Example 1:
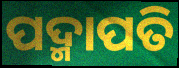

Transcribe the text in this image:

ପଦ୍ମାପତି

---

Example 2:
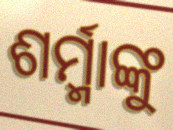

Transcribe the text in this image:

ଶର୍ମ୍ମାଙ୍କୁ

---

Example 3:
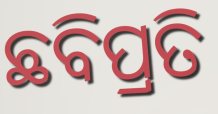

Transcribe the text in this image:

ଛବିପ୍ରତି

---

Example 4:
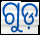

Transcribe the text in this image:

ଗୁଡ଼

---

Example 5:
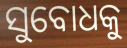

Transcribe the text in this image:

ସୁବୋଧକୁ